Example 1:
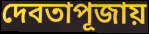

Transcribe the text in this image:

দেবতাপূজায়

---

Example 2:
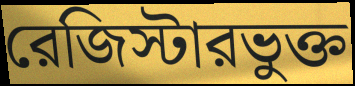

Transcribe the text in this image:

রেজিস্টারভুক্ত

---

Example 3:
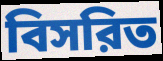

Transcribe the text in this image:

বিসরিত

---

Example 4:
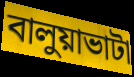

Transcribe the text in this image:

বালুয়াভাটা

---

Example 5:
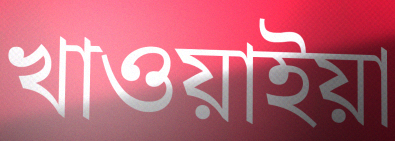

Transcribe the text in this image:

খাওয়াইয়া